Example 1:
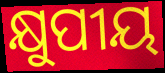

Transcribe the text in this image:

କ୍ଷୁପୀୟ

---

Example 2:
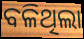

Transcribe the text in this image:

ବଳିଥିଲା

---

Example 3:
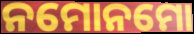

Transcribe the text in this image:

ନମୋନମୋ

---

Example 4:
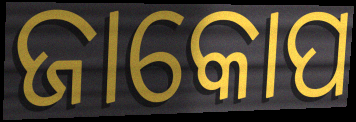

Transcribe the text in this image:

ଜାକୋପ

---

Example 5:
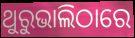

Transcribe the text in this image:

ଥୁରୁଭାଲିଠାରେ